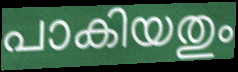
പാകിയതും